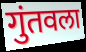
गुंतवला